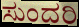
ಸುಂದರಿ